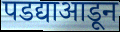
पडद्याआडून